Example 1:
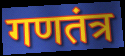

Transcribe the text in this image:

गणतंत्र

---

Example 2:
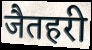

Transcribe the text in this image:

जैतहरी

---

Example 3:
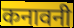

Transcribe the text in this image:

कनावनी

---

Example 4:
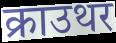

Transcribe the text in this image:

क्राउथर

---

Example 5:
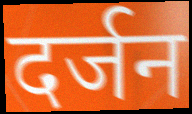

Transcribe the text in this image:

दर्जन